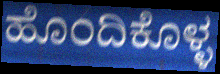
ಹೊಂದಿಕೊಳ್ಳ